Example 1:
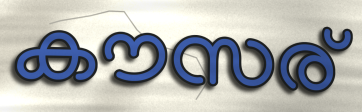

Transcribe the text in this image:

കൗസര്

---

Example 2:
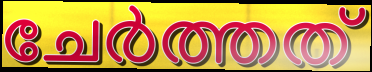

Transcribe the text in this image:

ചേർത്തത്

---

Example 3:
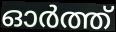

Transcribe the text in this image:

ഓർത്ത്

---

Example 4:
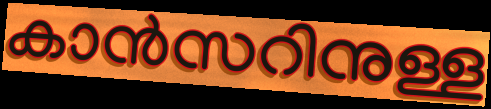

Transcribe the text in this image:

കാൻസറിനുള്ള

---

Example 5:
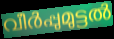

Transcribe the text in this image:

വീർപ്പുമുട്ടൽ